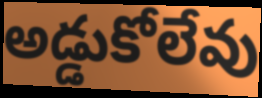
అడ్డుకోలేవు